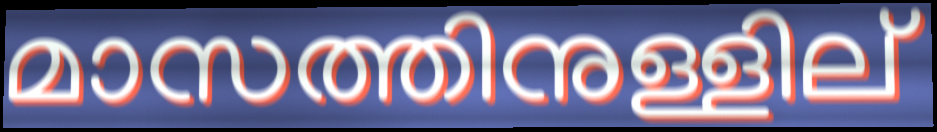
മാസത്തിനുള്ളില്